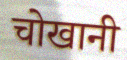
चोखानी